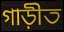
গাড়ীত